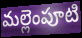
మల్లెంపూటి